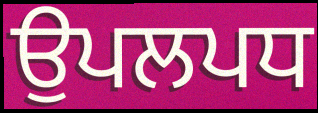
ਉਪਲਪਧ